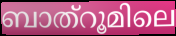
ബാത്റൂമിലെ